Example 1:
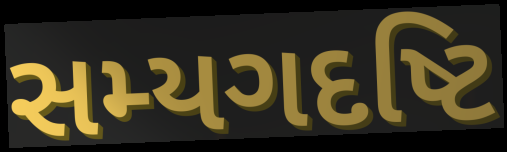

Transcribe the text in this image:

સમ્યગદષ્ટિ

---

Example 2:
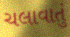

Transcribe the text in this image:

ચલાવાતું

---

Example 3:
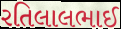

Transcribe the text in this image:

રતિલાલભાઈ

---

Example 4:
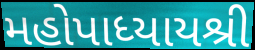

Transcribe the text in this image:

મહોપાધ્યાયશ્રી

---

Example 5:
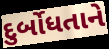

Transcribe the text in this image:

દુર્બોધતાને